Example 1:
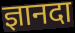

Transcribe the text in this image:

ज्ञानदा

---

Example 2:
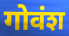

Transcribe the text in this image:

गोवंश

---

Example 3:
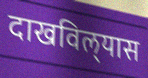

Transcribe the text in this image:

दाखविल्यास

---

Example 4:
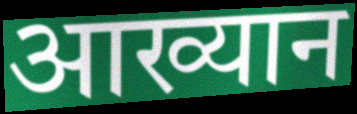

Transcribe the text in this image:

आख्यान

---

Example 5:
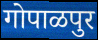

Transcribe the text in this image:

गोपाळपुर